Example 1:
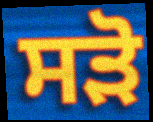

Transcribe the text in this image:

ਸੜੋ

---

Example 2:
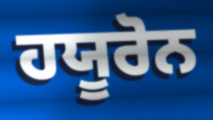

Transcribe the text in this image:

ਹਯੂਰੋਨ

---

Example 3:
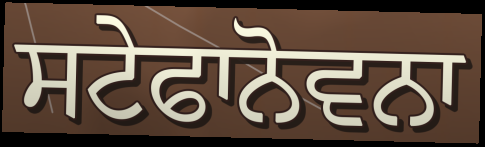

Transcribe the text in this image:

ਸਟੇਫਾਨੋਵਨਾ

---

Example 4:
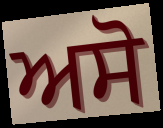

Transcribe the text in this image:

ਅਸੋ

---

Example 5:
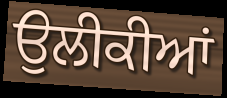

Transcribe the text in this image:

ਉਲੀਕੀਆਂ